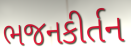
ભજનકીર્તન